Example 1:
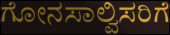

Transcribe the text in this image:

ಗೋನಸಾಲ್ವಿಸರಿಗೆ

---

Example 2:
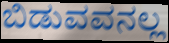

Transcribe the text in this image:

ಬಿಡುವವನಲ್ಲ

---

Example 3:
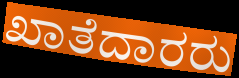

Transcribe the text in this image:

ಖಾತೆದಾರರು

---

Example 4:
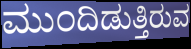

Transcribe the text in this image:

ಮುಂದಿಡುತ್ತಿರುವ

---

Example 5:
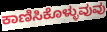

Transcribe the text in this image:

ಕಾಣಿಸಿಕೊಳ್ಳುವುವು